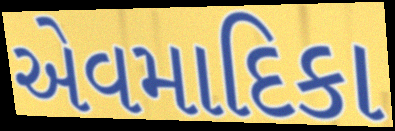
એવમાદિકા